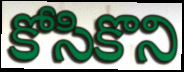
కోసికొని